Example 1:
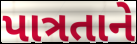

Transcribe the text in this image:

પાત્રતાને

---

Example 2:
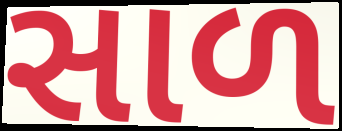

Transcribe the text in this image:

સાળ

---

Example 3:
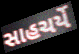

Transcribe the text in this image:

સાહચર્યે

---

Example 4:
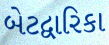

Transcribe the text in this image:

બેટદ્વારિકા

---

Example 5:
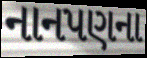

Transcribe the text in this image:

નાનપણના